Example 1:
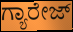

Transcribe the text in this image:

ಗ್ಯಾರೇಜ್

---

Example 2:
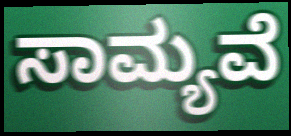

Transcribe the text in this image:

ಸಾಮ್ಯವೆ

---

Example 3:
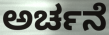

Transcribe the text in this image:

ಅರ್ಚನೆ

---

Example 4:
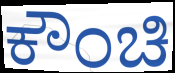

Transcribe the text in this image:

ಕೌಂಚಿ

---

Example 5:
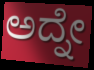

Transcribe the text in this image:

ಅದ್ನೇ